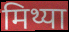
मिथ्‍या